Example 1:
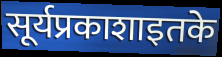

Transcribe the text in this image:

सूर्यप्रकाशाइतके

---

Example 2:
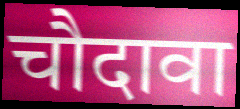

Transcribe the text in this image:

चौदावा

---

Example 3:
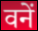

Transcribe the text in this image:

वनें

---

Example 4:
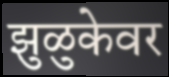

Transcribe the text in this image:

झुळुकेवर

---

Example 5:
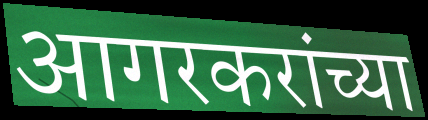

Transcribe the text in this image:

आगरकरांच्या